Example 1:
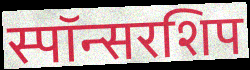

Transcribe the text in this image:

स्पॉन्सरशिप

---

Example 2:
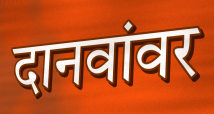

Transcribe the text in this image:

दानवांवर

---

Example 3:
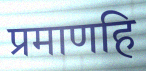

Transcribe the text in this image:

प्रमाणहि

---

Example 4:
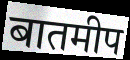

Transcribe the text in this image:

बातमीप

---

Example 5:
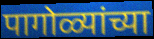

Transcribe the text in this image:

पागोळ्यांच्या